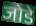
जोडे